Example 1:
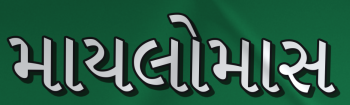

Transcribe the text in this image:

માયલોમાસ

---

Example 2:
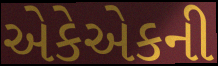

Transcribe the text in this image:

એકેએકની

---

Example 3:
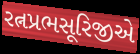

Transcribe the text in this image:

રત્નપ્રભસૂરિજીએ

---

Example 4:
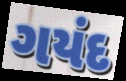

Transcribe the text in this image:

ગયંદ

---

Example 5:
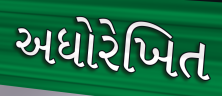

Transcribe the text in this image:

અધોરેખિત